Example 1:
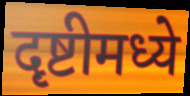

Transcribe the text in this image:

दृष्टीमध्ये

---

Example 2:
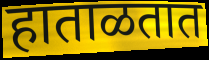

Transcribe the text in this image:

हाताळतात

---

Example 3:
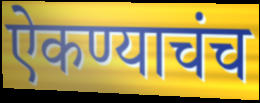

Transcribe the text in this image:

ऐकण्याचंच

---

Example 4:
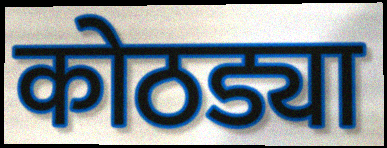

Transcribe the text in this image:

कोठड्या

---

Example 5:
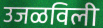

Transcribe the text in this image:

उजळविली